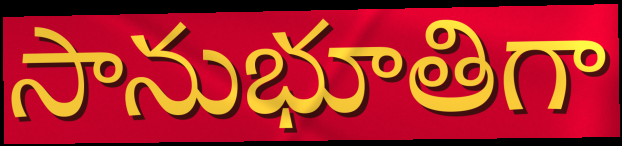
సానుభూతిగా